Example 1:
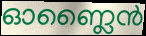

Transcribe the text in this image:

ഓണ്ലൈൻ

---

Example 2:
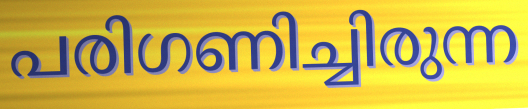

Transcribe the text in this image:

പരിഗണിച്ചിരുന്ന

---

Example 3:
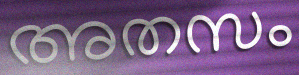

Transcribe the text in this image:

അതസം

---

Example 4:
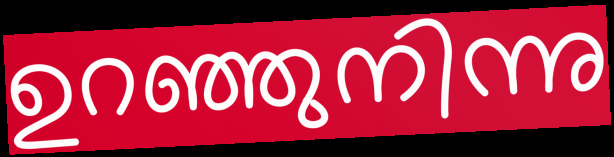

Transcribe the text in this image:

ഉറഞ്ഞുനിന്നു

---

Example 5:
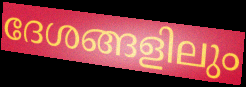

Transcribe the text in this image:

ദേശങ്ങളിലും